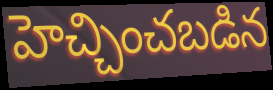
హెచ్చించబడిన